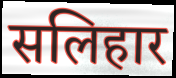
सलिहार